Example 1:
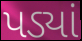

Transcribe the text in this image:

પડ્યાં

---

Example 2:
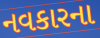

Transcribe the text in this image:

નવકારના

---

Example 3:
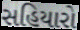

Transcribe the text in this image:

સહિયારો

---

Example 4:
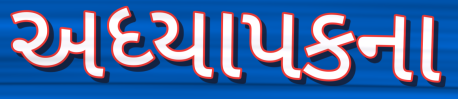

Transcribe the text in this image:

અધ્યાપકના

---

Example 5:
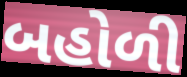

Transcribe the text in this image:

બહોળી